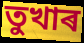
তুখাৰ